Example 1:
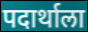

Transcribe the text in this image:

पदार्थाला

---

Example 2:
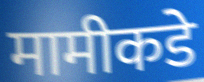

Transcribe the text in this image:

मामीकडे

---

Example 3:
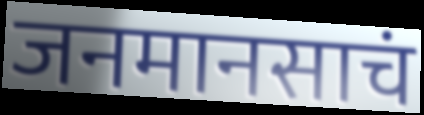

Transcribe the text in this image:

जनमानसाचं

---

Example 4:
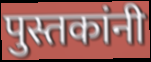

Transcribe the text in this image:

पुस्तकांनी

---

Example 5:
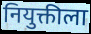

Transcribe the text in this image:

नियुक्तीला